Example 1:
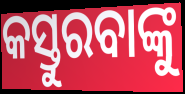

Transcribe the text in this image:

କସ୍ତୁରବାଙ୍କୁ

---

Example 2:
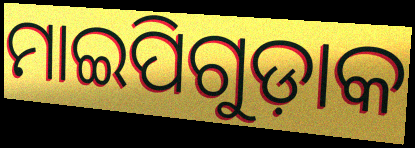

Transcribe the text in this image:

ମାଇପିଗୁଡ଼ାକ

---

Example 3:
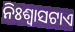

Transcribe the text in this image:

ନିଃଶ୍ଵାସଟାଏ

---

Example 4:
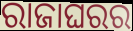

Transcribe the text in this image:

ରାଜାଘରର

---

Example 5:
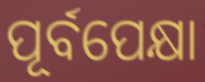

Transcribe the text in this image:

ପୂର୍ବପେକ୍ଷା